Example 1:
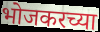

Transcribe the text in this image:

भोजकरच्या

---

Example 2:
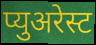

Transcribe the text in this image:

प्युअरेस्ट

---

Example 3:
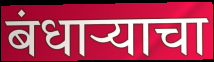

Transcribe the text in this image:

बंधार्‍याचा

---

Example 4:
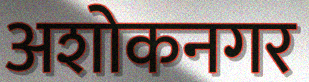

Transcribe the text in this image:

अशोकनगर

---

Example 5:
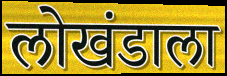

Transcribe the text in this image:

लोखंडाला